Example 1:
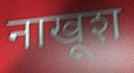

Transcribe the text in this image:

नाखूश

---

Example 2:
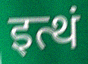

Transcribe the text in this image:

इत्थं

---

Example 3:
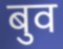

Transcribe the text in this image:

बुव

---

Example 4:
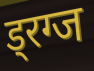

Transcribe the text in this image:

ड्रग्ज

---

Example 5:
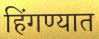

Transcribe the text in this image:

हिंगण्यात